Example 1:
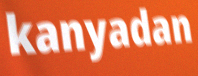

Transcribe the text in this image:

kanyadan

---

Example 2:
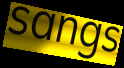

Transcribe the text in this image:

sangs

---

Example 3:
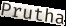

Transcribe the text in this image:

Prutha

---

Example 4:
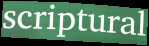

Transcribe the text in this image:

scriptural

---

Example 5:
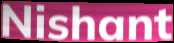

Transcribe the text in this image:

Nishant